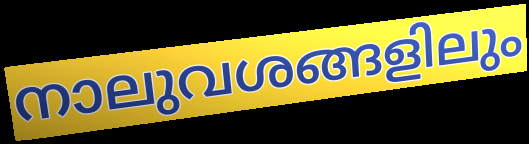
നാലുവശങ്ങളിലും